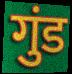
गुंड